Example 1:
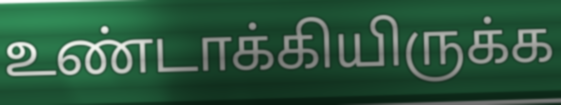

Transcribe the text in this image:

உண்டாக்கியிருக்க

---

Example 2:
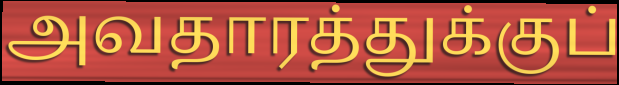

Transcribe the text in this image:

அவதாரத்துக்குப்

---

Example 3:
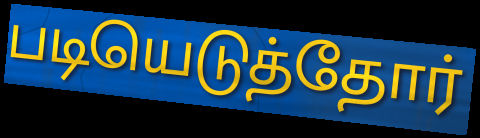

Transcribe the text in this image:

படியெடுத்தோர்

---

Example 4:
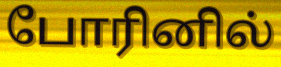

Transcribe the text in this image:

போரினில்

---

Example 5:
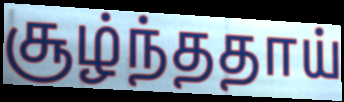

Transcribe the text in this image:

சூழ்ந்ததாய்